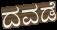
ದವಡೆ